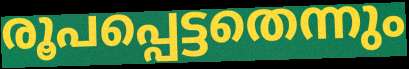
രൂപപ്പെട്ടതെന്നും